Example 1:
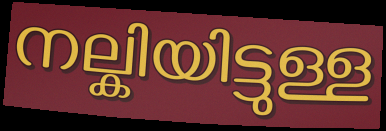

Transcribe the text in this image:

നല്കിയിട്ടുള്ള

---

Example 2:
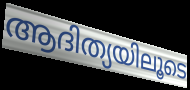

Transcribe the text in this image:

ആദിത്യയിലൂടെ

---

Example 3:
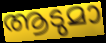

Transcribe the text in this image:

ആടുമാ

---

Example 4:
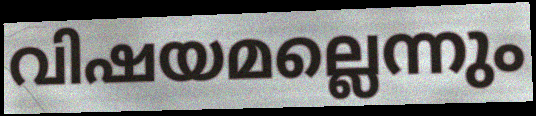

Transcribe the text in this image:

വിഷയമല്ലെന്നും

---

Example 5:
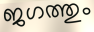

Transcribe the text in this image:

ജഗത്തും